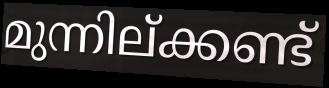
മുന്നില്ക്കണ്ട്